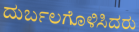
ದುರ್ಬಲಗೊಳಿಸಿದರು